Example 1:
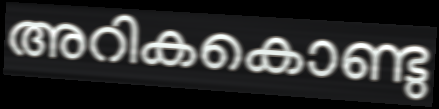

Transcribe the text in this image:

അറികകൊണ്ടു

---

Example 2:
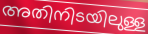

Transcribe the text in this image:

അതിനിടയിലുള്ള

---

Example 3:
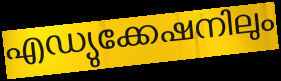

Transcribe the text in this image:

എഡ്യുക്കേഷനിലും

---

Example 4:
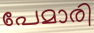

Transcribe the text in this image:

പേമാരി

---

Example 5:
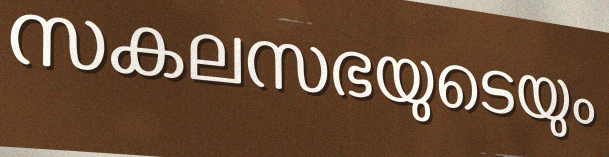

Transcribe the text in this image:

സകലസഭയുടെയും